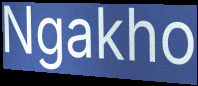
Ngakho